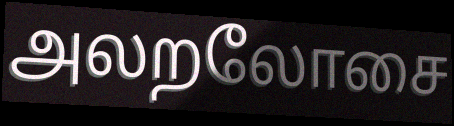
அலறலோசை